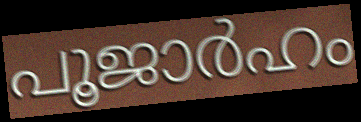
പൂജാർഹം